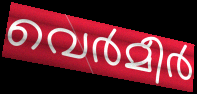
വെർമീർ